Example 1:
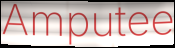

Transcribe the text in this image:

Amputee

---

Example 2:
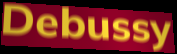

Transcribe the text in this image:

Debussy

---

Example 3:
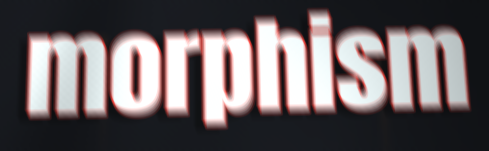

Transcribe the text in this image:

morphism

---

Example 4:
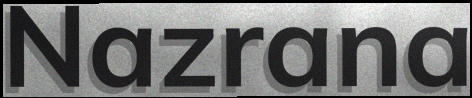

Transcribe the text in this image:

Nazrana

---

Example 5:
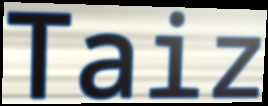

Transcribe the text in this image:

Taiz